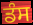
ਡੰਸ